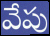
వేపు